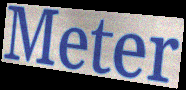
Meter